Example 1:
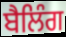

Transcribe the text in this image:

ਬੈਲਿੰਗ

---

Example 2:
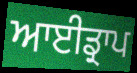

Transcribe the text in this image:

ਆਈਡ੍ਰਾਪ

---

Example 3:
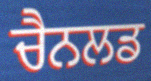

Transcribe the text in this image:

ਚੈਨਲਡ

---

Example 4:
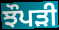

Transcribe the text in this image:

ਝੌਪੜੀ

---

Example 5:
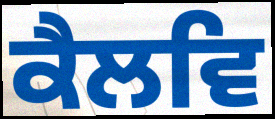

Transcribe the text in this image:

ਕੈਲਵਿ